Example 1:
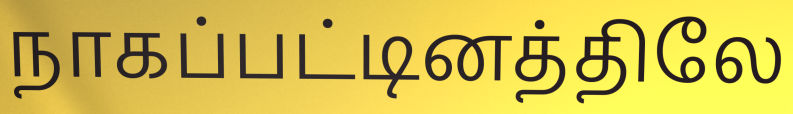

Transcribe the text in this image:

நாகப்பட்டினத்திலே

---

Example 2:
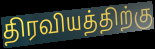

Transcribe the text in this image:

திரவியத்திற்கு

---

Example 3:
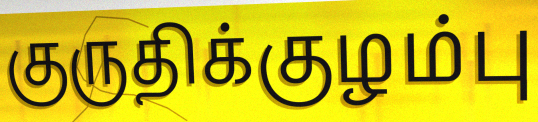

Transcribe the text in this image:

குருதிக்குழம்பு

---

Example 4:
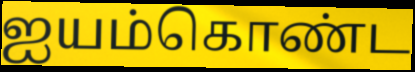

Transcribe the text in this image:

ஐயம்கொண்ட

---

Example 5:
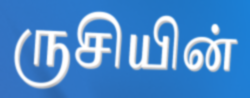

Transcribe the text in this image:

ருசியின்